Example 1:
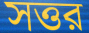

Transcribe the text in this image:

সত্তর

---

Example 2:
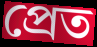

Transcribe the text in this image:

প্রেত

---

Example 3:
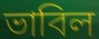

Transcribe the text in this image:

ভাবিল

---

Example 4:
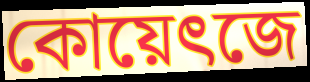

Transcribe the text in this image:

কোয়েৎজে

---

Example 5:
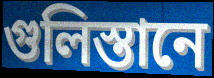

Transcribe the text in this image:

গুলিস্তানে